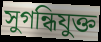
সুগন্ধিযুক্ত